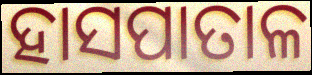
ହାସପାତାଳ